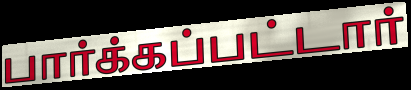
பார்க்கப்பட்டார்